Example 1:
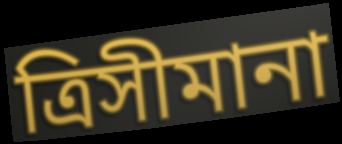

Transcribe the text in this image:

ত্রিসীমানা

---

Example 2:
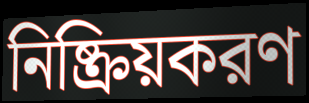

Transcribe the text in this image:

নিষ্ক্রিয়করণ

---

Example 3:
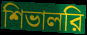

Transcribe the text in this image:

শিভালরি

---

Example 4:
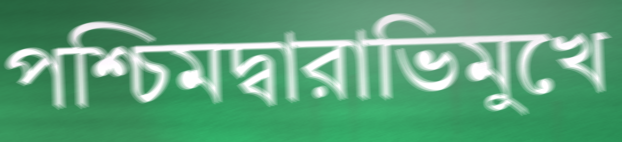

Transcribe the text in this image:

পশ্চিমদ্বারাভিমুখে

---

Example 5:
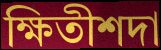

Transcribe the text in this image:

ক্ষিতীশদা